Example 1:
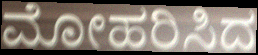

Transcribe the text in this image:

ಮೋಹರಿಸಿದ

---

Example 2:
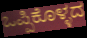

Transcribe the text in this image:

ಒಪ್ಪಿಕೊಳ್ಳದ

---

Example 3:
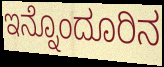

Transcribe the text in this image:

ಇನ್ನೊಂದೂರಿನ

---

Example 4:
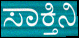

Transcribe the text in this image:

ಸಾಕ್ತಿನಿ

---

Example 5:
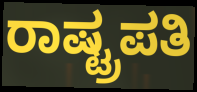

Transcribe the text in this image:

ರಾಷ್ಟ್ರಪತಿ